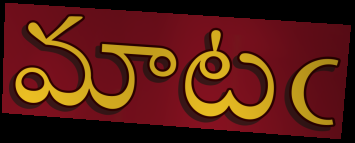
మాటఁ